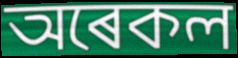
অৰেকল